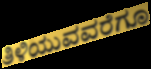
ತಿಳಿಯುವವರೆಗೂ